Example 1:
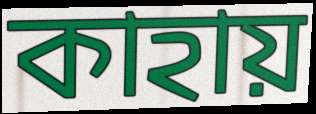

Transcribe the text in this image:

কাহায়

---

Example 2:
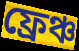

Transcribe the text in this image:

ফ্রেঞ্চ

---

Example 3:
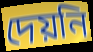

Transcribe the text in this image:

দেয়নি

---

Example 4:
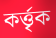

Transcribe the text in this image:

কর্ত্তৃক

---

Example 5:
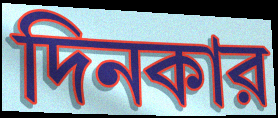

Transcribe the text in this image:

দিনকার